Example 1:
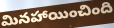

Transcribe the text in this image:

మినహాయించింది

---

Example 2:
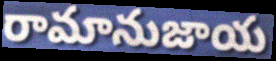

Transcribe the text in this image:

రామానుజాయ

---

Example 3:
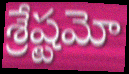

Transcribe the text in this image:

శ్రేష్టమో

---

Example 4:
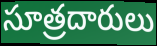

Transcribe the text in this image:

సూత్రదారులు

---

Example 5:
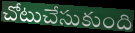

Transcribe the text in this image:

చోటుచేసుకుంది